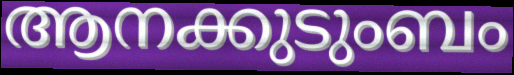
ആനക്കുടുംബം